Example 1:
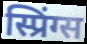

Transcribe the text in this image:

स्प्रिंग्स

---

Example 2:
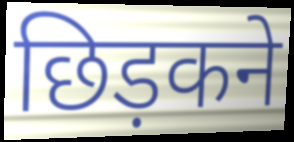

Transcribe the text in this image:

छिड़कने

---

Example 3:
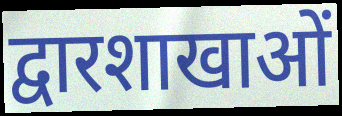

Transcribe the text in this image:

द्वारशाखाओं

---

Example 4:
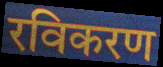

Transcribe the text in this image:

रविकरण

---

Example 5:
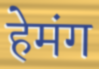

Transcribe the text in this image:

हेमंग